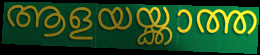
ആളയയ്ക്കാത്ത